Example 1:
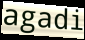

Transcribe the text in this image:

agadi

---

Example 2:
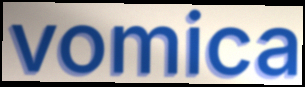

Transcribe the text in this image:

vomica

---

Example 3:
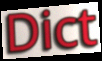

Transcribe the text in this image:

Dict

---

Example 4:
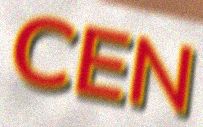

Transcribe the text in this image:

CEN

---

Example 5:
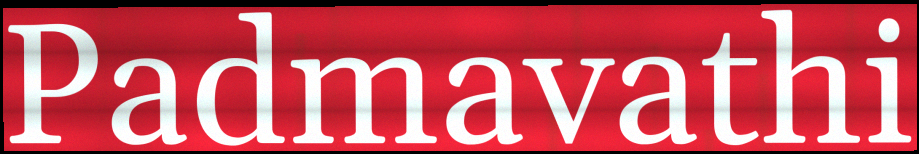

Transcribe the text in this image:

Padmavathi